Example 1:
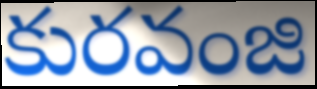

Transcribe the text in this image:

కురవంజి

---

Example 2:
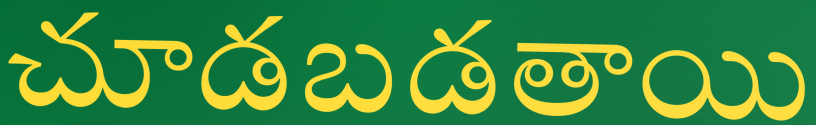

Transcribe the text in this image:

చూడబడతాయి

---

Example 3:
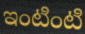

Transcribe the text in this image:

ఇంటింటి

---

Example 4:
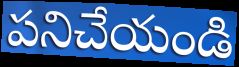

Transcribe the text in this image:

పనిచేయండి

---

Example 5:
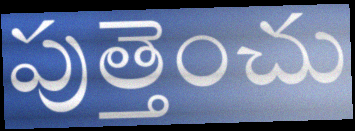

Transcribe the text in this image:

పుత్తెంచు